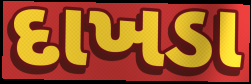
દાખડા